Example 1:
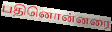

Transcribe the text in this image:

பதினொன்னரை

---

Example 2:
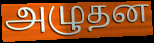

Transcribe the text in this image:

அழுதன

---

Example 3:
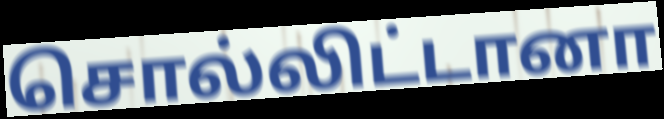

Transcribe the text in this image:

சொல்லிட்டானா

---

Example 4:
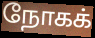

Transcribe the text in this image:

நோகக்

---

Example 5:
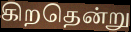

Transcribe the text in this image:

கிறதென்று